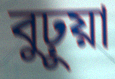
বুঢ়ুয়া